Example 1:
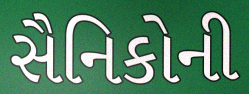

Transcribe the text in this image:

સૈનિકોની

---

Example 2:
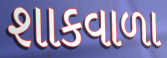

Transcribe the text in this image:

શાકવાળા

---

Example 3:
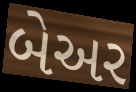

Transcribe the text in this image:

બેઅર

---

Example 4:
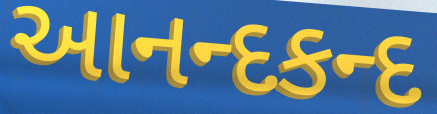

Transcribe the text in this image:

આનન્દકન્દ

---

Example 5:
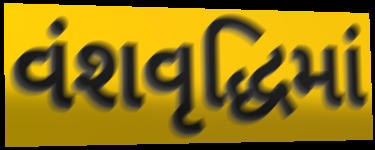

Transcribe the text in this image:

વંશવૃદ્ધિમાં